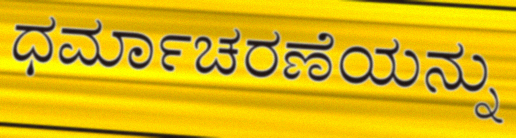
ಧರ್ಮಾಚರಣೆಯನ್ನು